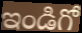
ఇండిగో